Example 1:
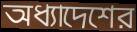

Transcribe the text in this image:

অধ্যাদেশের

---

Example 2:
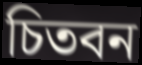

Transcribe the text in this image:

চিতবন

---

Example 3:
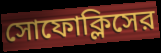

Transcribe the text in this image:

সোফোক্লিসের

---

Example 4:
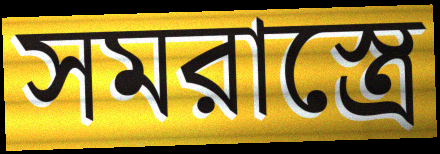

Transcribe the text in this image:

সমরাস্ত্রে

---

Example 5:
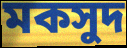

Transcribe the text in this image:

মকসুদ